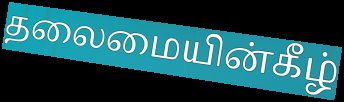
தலைமையின்கீழ்